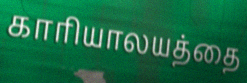
காரியாலயத்தை